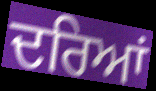
ਦਰਿਆਂ